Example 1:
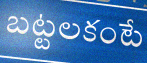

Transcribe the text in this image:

బట్టలకంటే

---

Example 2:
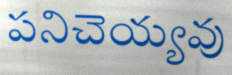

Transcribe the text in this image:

పనిచెయ్యవు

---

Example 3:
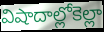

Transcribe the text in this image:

విషాదాల్లోకెల్లా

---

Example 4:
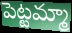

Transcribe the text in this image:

పెట్టమ్మా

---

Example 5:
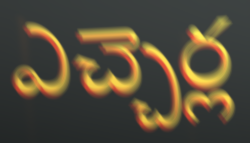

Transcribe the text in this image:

ఎచ్చెర్ల